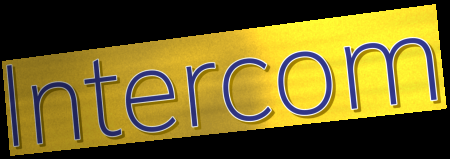
Intercom